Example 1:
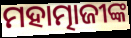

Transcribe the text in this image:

ମହାତ୍ମାଜୀଙ୍କ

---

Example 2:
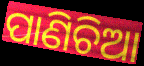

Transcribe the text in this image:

ପାଣିଚିଆ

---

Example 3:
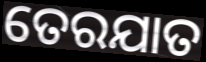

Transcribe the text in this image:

ତେରଯାତ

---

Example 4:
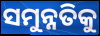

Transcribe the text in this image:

ସମୁନ୍ନତିକୁ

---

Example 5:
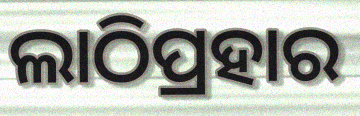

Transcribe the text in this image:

ଲାଠିପ୍ରହାର